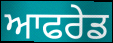
ਆਫਰੇਡ